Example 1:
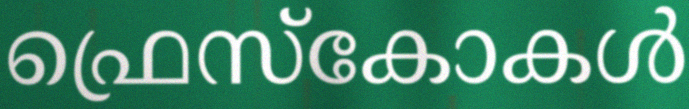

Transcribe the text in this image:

ഫ്രെസ്കോകൾ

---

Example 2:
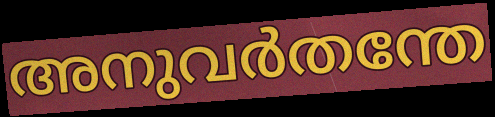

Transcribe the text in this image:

അനുവർതന്തേ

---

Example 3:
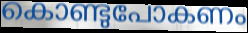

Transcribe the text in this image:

കൊണ്ടുപോകണം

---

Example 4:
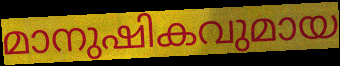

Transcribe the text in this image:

മാനുഷികവുമായ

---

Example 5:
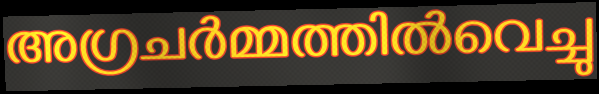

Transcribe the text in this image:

അഗ്രചർമ്മത്തിൽവെച്ചു